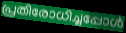
പ്രതിരോധിച്ചപ്പോൾ